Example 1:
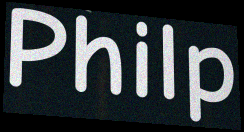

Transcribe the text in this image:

Philp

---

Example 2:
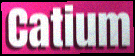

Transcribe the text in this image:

Catium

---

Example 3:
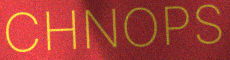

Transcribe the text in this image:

CHNOPS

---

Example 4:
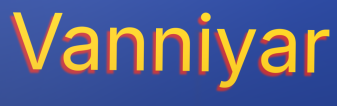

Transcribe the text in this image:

Vanniyar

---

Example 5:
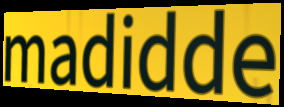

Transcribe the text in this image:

madidde